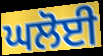
ਘਲੋਈ